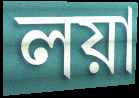
লয়া